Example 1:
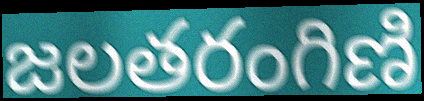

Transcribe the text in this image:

జలతరంగిణి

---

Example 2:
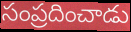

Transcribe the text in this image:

సంప్రదించాడు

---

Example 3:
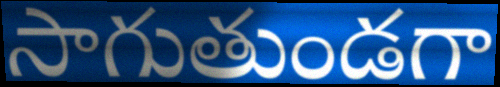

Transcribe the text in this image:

సాగుతుండగా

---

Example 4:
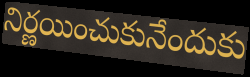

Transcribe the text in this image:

నిర్ణయించుకునేందుకు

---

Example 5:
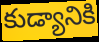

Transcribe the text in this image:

కుడ్యానికి